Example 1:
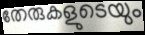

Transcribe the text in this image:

തേരുകളുടെയും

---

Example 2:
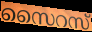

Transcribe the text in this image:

സൈറസ്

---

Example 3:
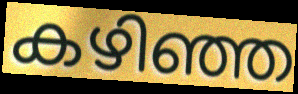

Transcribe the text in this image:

കഴിഞ്ഞ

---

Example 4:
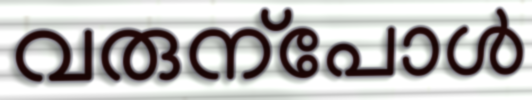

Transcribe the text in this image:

വരുന്പോൾ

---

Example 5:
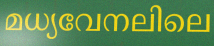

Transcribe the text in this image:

മധ്യവേനലിലെ